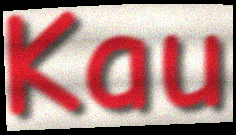
Kau